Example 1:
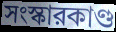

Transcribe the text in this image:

সংস্কারকাণ্ড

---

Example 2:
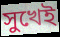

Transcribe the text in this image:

সুখেই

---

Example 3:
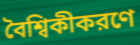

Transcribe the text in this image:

বৈশ্বিকীকরণে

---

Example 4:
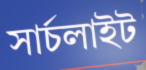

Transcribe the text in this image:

সার্চলাইট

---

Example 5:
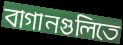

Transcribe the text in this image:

বাগানগুলিতে